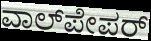
ವಾಲ್‌ಪೇಪರ್